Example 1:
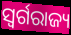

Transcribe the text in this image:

ସ୍ୱର୍ଗରାଜ୍ୟ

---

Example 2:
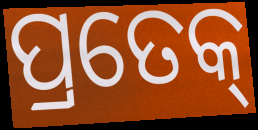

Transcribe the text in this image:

ପ୍ରତେକ୍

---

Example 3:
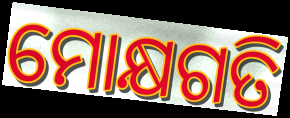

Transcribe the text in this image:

ମୋକ୍ଷଗତି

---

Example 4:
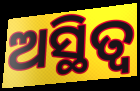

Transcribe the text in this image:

ଅସ୍ଥିତ୍ଵ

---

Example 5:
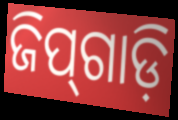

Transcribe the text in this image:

ଜିପ୍‍ଗାଡ଼ି